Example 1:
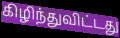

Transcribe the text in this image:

கிழிந்துவிட்டது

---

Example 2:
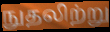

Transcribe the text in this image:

நுதலிற்று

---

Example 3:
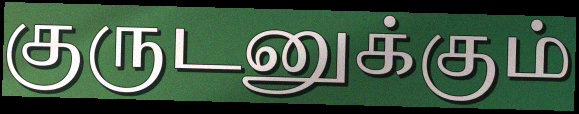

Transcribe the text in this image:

குருடனுக்கும்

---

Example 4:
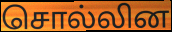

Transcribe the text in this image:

சொல்லின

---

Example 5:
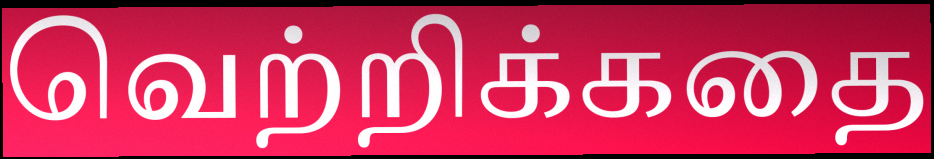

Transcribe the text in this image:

வெற்றிக்கதை